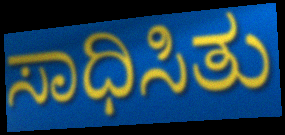
ಸಾಧಿಸಿತು